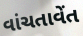
વાંચતાવેંત